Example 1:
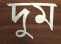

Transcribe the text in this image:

দুম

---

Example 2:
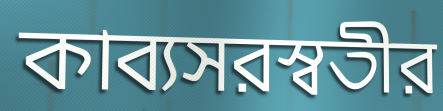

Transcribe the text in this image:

কাব্যসরস্বতীর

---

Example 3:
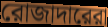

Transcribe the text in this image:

রোজাদারেরা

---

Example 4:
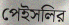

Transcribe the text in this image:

পেইসলির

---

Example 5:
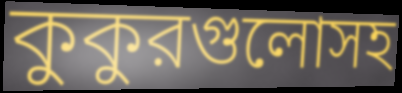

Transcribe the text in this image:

কুকুরগুলোসহ